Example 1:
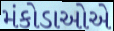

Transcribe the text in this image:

મંકોડાઓએ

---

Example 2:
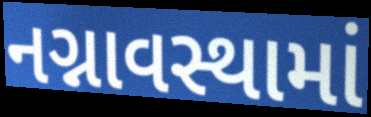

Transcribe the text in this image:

નગ્નાવસ્થામાં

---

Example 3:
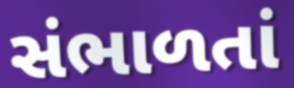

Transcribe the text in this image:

સંભાળતાં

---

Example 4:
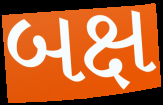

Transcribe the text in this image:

બક્ષ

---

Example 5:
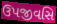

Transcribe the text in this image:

ઉપજીવસિ